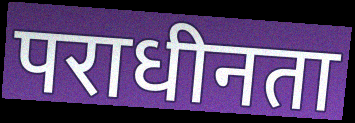
पराधीनता